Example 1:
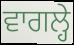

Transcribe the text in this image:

ਵਾਗਲ੍ਹੇ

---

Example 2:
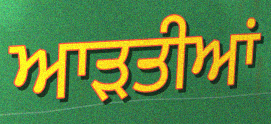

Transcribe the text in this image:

ਆਡ਼ਤੀਆਂ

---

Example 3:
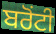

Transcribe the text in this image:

ਬਰੋਂਟੀ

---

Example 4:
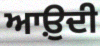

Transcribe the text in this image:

ਆਉ਼ਦੀ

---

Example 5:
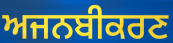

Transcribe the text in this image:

ਅਜਨਬੀਕਰਣ